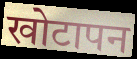
खोटापन